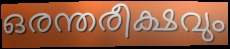
ഒരന്തരീക്ഷവും